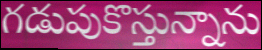
గడుపుకొస్తున్నాను